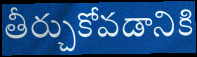
తీర్చుకోవడానికి